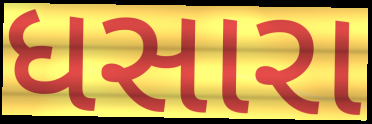
ધસારા